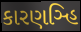
કારણઞ્હિ